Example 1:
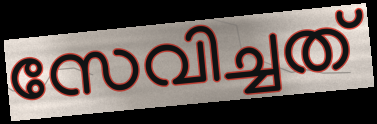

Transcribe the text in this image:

സേവിച്ചത്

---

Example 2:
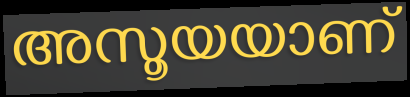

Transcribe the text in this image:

അസൂയയാണ്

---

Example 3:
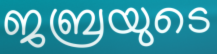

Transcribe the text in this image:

ജബ്രയുടെ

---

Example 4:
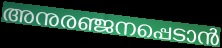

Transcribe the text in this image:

അനുരഞ്ജനപ്പെടാൻ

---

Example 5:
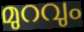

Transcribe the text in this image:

മുറവും